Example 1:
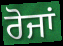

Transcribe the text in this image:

ਰੋਜਾਂ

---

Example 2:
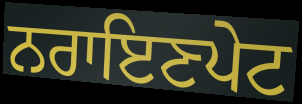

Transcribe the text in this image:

ਨਰਾਇਣਪੇਟ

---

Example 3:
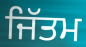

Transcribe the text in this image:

ਜਿੱਤਮ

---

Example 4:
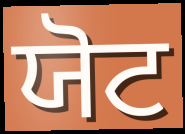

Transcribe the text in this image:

ਯੋਟ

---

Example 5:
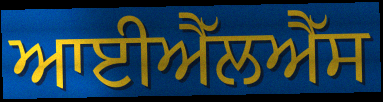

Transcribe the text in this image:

ਆਈਐੱਲਐੱਸ